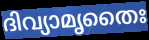
ദിവ്യാമൃതൈഃ